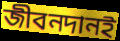
জীবনদানই